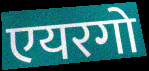
एयरगो